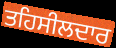
ਤਹਿਸੀਲਦਾਰ